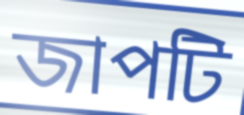
জাপটি